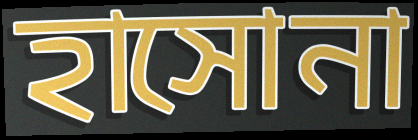
হাসোনা